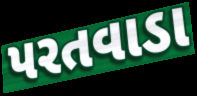
પરતવાડા